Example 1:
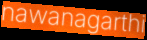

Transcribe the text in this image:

nawanagarthi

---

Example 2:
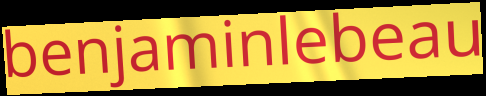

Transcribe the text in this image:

benjaminlebeau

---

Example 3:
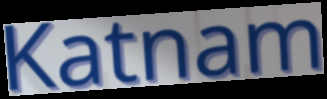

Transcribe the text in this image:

Katnam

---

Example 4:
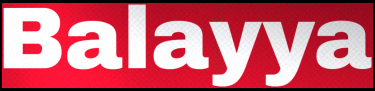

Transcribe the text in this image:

Balayya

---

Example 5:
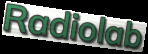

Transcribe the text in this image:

Radiolab